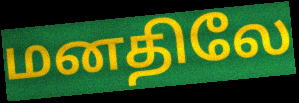
மனதிலே